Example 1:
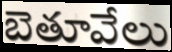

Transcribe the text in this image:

బెతూవేలు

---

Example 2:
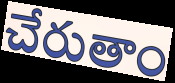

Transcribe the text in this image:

చేరుతాం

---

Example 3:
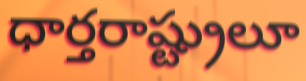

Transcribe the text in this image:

ధార్తరాష్ట్రులూ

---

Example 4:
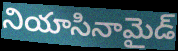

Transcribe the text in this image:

నియాసినామైడ్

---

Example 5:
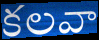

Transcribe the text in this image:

కలవా